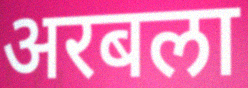
अरबला